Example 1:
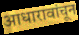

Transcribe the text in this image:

आधारावांचून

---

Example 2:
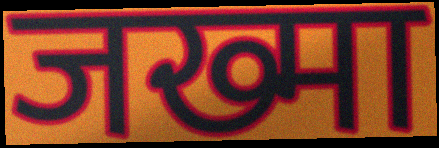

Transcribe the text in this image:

जख्मा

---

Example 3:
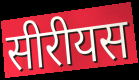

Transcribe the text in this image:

सीरीयस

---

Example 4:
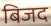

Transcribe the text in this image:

बिजद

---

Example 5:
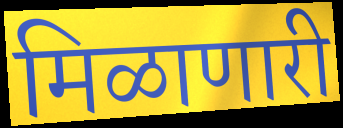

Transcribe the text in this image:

मिळाणारी